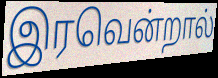
இரவென்றால்